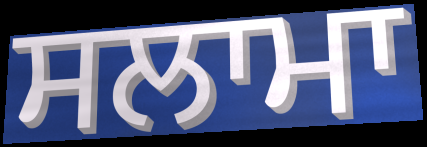
ਸਲਾਮਾ